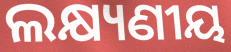
ଲକ୍ଷ୍ୟଣୀୟ